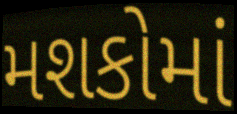
મશકોમાં